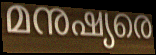
മനുഷ്യരെ